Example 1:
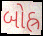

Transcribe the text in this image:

બોહ્ર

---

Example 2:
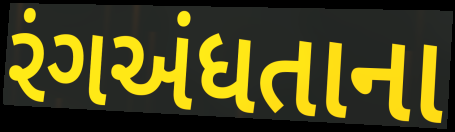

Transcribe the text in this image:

રંગઅંધતાના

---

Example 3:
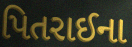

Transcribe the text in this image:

પિતરાઈના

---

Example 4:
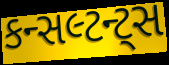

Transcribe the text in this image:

કન્સલ્ટન્ટ્સ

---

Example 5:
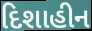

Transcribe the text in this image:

દિશાહીન